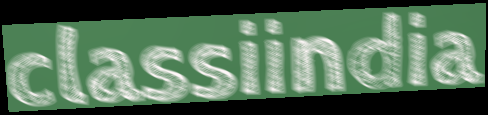
classiindia